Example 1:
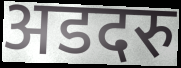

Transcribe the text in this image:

अडदरु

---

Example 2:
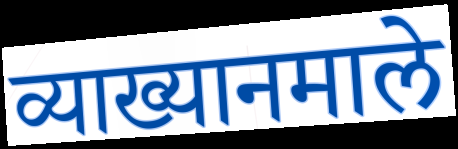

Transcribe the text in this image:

व्याख्यानमाले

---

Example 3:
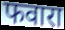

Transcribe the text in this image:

फवारा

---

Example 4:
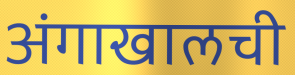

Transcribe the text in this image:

अंगाखालची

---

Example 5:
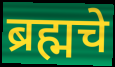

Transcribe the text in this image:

ब्रह्मचे